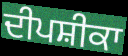
ਦੀਪਸ਼ੀਕਾ